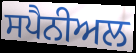
ਸਪੈਨੀਅਲ